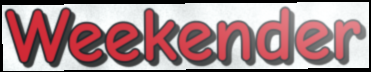
Weekender